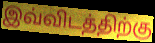
இவ்விடத்திற்கு